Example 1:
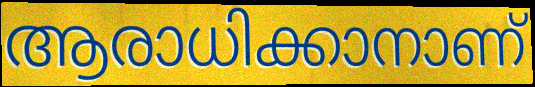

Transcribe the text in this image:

ആരാധിക്കാനാണ്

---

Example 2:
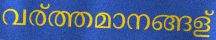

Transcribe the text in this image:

വര്ത്തമാനങ്ങള്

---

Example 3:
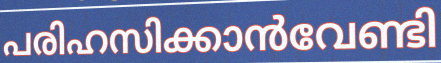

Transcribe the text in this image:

പരിഹസിക്കാൻവേണ്ടി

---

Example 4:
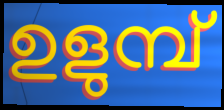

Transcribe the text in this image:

ഉളുമ്പ്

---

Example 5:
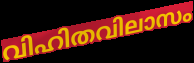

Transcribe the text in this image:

വിഹിതവിലാസം